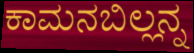
ಕಾಮನಬಿಲ್ಲನ್ನ